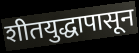
शीतयुद्धापासून